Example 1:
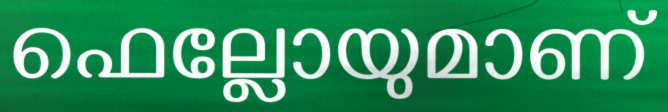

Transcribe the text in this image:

ഫെല്ലോയുമാണ്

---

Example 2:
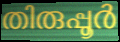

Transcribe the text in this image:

തിരുപ്പൂർ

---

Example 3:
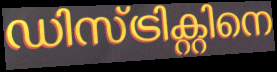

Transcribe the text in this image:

ഡിസ്ട്രിക്റ്റിനെ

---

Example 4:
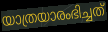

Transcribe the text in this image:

യാത്രയാരംഭിച്ചത്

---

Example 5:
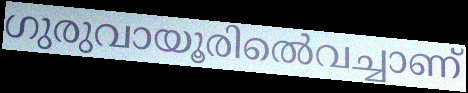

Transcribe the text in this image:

ഗുരുവായൂരിൽെവച്ചാണ്